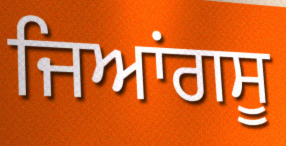
ਜਿਆਂਗਸੂ